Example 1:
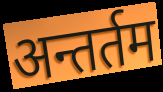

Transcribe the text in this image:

अन्तर्तम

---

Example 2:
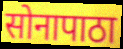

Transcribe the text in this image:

सोनापाठा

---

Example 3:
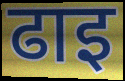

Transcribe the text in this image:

ढाइ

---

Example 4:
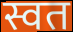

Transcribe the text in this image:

स्वत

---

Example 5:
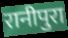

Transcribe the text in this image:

रानीपुरा